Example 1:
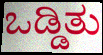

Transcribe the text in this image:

ಒಡ್ಡಿತು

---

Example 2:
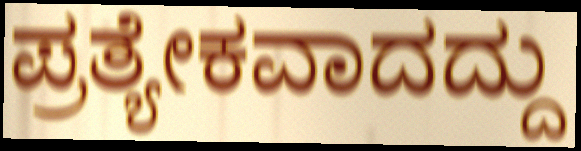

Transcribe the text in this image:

ಪ್ರತ್ಯೇಕವಾದದ್ದು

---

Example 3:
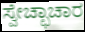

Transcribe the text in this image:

ಸ್ವೇಚ್ಛಾಚಾರ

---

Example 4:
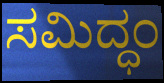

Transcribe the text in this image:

ಸಮಿದ್ಧಂ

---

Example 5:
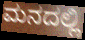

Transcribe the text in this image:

ಮನದಲ್ಲಿ